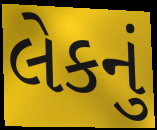
લેકનું